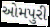
ઓમપુરી